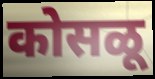
कोसळू